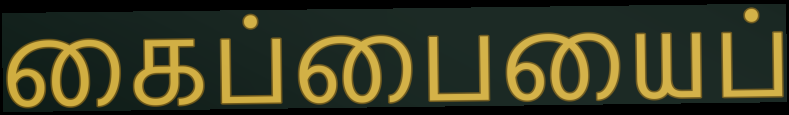
கைப்பையைப்